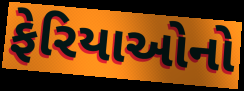
ફેરિયાઓનો